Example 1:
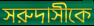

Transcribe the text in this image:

সরুদাসীকে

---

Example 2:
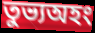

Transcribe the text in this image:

তুভ্যঅহং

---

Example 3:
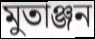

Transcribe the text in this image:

মুতাঞ্জন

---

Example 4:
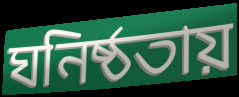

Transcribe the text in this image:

ঘনিষ্ঠতায়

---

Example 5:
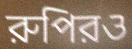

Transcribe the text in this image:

রুপিরও